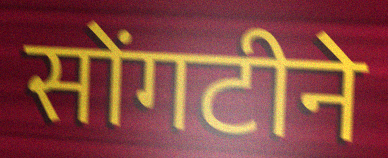
सोंगटीने